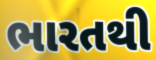
ભારતથી